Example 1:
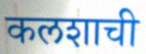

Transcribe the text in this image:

कलशाची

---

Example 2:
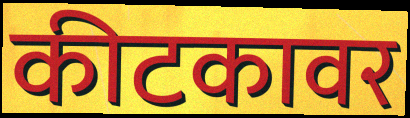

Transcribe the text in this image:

कीटकावर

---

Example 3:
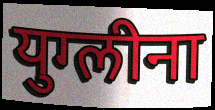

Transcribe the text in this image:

युग्लीना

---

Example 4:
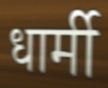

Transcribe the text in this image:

धार्मी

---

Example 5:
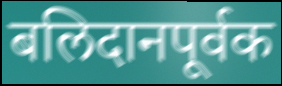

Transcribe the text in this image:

बलिदानपूर्वक